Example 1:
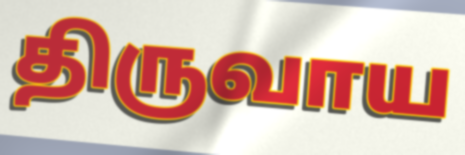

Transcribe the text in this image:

திருவாய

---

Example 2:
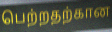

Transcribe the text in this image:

பெற்றதற்கான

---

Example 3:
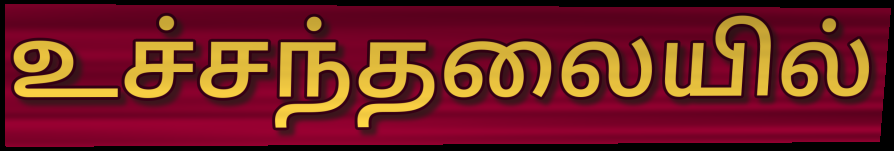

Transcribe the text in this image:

உச்சந்தலையில்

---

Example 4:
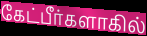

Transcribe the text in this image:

கேட்பீர்களாகில்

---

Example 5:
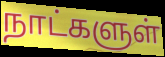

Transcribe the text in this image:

நாட்களுள்